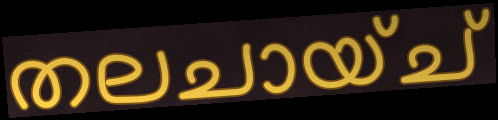
തലചായ്ച്